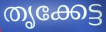
തൃക്കേട്ട